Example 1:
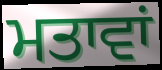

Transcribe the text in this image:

ਮਤਾਵਾਂ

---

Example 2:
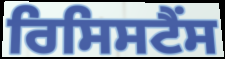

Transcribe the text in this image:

ਰਿਸਿਸਟੈਂਸ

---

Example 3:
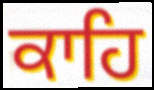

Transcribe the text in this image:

ਕਾਹਿ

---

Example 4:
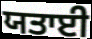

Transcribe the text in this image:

ਯਤਾਈ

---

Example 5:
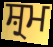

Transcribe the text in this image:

ਸ਼੍ਰਮ